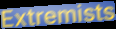
Extremists